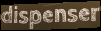
dispenser